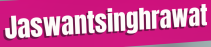
Jaswantsinghrawat